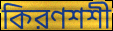
কিরণশশী